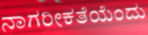
ನಾಗರೀಕತೆಯೆಂದು